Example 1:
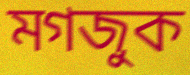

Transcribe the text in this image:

মগজুক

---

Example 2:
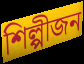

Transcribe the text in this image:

শিল্পীজন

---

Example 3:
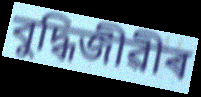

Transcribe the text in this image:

বুদ্ধিজীৱীৰ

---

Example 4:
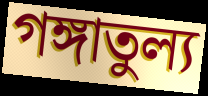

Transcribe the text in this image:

গঙ্গাতুল্য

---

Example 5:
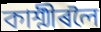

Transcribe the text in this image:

কাশ্মীৰলৈ